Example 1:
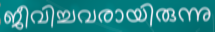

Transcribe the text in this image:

ജീവിച്ചവരായിരുന്നു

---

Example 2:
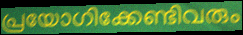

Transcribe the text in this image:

പ്രയോഗിക്കേണ്ടിവരും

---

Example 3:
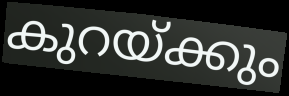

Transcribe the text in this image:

കുറയ്ക്കും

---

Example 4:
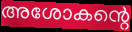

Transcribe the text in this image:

അശോകന്റെ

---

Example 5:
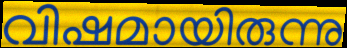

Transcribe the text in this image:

വിഷമായിരുന്നു